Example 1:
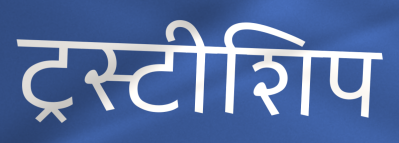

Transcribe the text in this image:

ट्रस्टीशिप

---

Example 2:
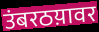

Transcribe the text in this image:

उंबरठय़ावर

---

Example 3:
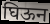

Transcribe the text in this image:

घिऊन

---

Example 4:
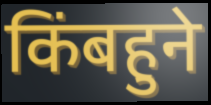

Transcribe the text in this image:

किंबहुने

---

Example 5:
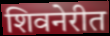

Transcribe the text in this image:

शिवनेरीत